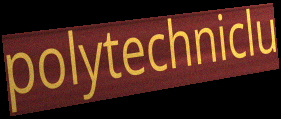
polytechniclu